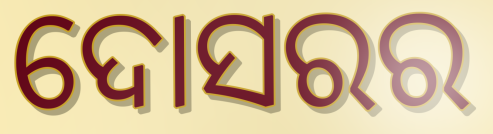
ଦୋସରର